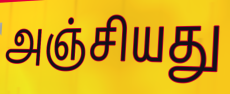
அஞ்சியது